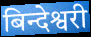
बिन्देश्वरी